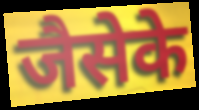
जैसेके